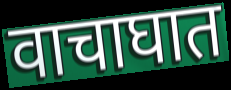
वाचाघात